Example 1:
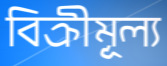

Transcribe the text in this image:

বিক্ৰীমূল্য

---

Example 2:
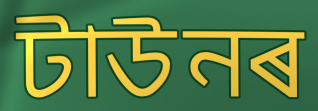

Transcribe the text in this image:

টাউনৰ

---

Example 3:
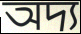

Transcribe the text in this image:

অদ্য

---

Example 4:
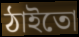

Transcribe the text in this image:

ঠাইতো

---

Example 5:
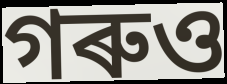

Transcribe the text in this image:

গৰুও